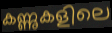
കണ്ണുകളിലെ